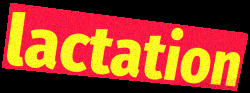
lactation